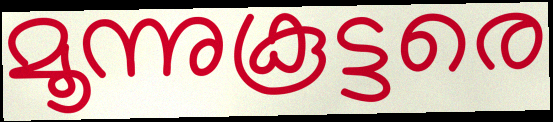
മൂന്നുകൂട്ടരെ